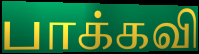
பாக்கவி